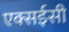
एक्सईसी